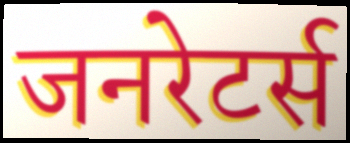
जनरेटर्स